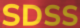
SDSS